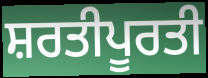
ਸ਼ਰਤੀਪੂਰਤੀ